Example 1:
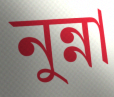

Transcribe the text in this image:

নুন্না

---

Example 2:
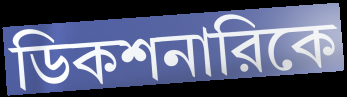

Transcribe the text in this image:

ডিকশনারিকে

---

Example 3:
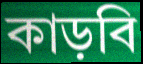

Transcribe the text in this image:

কাড়বি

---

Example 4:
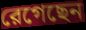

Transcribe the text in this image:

রেগেছেন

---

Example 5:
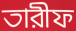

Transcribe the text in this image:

তারীফ